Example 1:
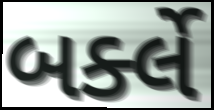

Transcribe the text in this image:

બર્ક્લે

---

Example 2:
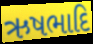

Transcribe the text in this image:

ઋષભાદિ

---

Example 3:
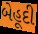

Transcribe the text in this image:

બેહૂદી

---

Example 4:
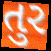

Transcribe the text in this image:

તુર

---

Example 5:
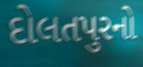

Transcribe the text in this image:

દોલતપુરનો